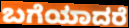
ಬಗೆಯಾದರೆ